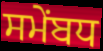
ਸਮੇਂਬਧ